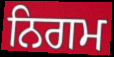
ਨਿਗਮ